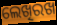
ଲେଖିରଖ